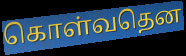
கொள்வதென